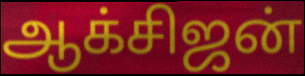
ஆக்சிஜன்